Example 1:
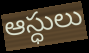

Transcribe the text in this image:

ఆస్ధులు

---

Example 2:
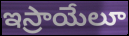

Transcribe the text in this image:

ఇస్రాయేలూ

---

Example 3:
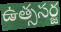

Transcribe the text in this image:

ఉత్ససర్జ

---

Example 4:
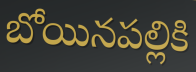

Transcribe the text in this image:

బోయినపల్లికి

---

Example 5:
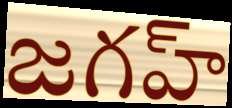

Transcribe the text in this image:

జగహ్